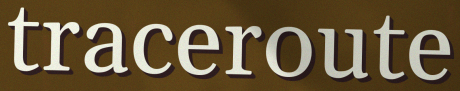
traceroute